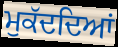
ਮੁਕੱਦਦਿਆਂ